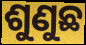
ଶୁଣୁଛ